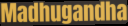
Madhugandha